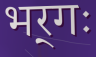
भर्गः